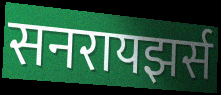
सनरायझर्स